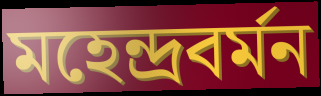
মহেন্দ্রবর্মন